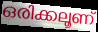
ഒരിക്കലൂണ്